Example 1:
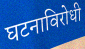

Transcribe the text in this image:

घटनाविरोधी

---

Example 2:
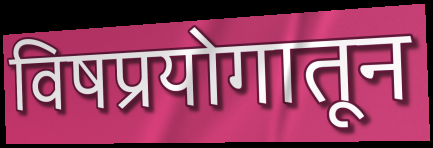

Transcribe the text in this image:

विषप्रयोगातून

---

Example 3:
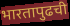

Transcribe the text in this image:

भारतापुढची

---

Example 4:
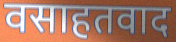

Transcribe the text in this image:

वसाहतवाद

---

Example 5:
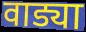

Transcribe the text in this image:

वाड्या